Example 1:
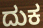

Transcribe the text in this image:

ದುಕ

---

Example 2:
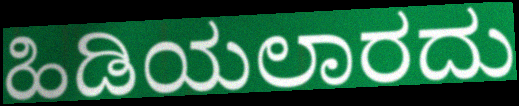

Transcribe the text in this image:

ಹಿಡಿಯಲಾರದು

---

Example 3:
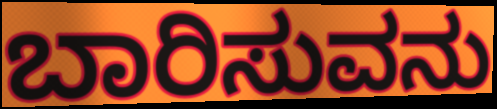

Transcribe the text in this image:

ಬಾರಿಸುವನು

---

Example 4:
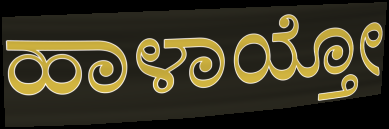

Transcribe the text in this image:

ಹಾಳಾಯ್ತೋ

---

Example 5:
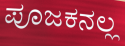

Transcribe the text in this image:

ಪೂಜಕನಲ್ಲ